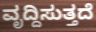
ವೃದ್ದಿಸುತ್ತದೆ